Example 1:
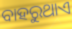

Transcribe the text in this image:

ବାହରୁଥାଏ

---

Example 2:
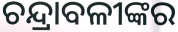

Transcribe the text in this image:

ଚନ୍ଦ୍ରାବଳୀଙ୍କର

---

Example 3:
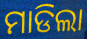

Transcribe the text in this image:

ମାଡିଲା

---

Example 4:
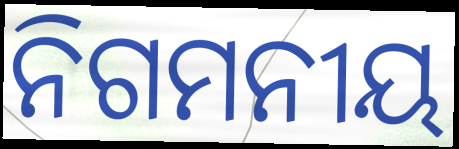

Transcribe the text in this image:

ନିଗମନୀୟ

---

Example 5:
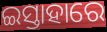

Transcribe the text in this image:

ଇସ୍ତାହାରେ